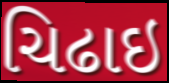
ચિઢાઇ